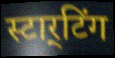
स्टार्टिंग